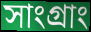
সাংগ্রাং